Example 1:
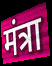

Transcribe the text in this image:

मंत्रा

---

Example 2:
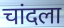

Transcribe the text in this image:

चांदला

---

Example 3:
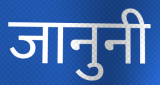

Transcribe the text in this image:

जानुनी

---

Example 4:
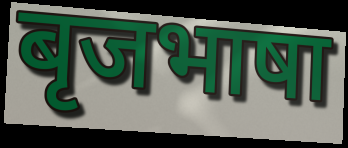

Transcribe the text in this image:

बृजभाषा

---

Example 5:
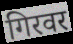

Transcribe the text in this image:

गिरवर